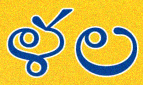
ళల